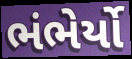
ભંભેર્યો